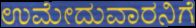
ಉಮೇದುವಾರನಿಗೆ